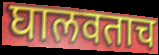
घालवताच